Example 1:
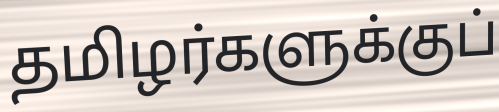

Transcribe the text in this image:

தமிழர்களுக்குப்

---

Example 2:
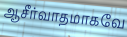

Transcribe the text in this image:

ஆசீர்வாதமாகவே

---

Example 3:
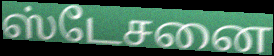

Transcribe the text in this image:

ஸ்டேசனை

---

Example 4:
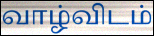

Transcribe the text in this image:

வாழ்விடம்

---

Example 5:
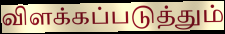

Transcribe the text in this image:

விளக்கப்படுத்தும்